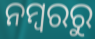
ନମ୍ୱରରୁ